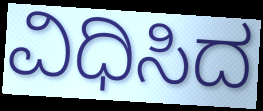
ವಿಧಿಸಿದ